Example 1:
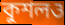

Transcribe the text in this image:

কুশলও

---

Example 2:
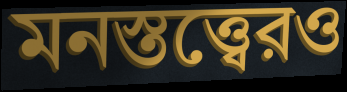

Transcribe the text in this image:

মনস্তত্ত্বেরও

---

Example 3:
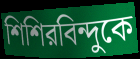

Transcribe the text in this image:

শিশিরবিন্দুকে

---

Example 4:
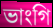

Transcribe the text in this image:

ভাংগি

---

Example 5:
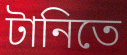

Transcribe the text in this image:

টানিতে